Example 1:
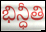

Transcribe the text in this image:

భిన్ధీతి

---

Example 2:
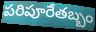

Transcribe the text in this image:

పరిపూరేతబ్బం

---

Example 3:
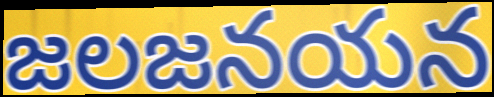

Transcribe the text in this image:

జలజనయన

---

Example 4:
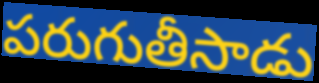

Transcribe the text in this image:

పరుగుతీసాడు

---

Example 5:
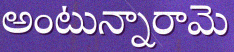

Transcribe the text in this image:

అంటున్నారామె